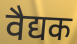
वैद्यक